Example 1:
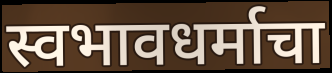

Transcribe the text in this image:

स्वभावधर्माचा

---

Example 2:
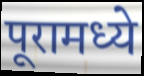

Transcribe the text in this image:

पूरामध्ये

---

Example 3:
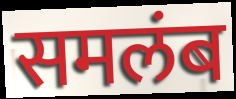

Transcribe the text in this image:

समलंब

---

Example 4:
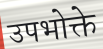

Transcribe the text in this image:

उपभोक्ते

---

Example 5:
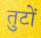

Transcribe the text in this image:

तुटों